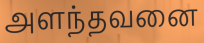
அளந்தவனை